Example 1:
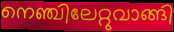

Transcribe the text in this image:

നെഞ്ചിലേറ്റുവാങ്ങി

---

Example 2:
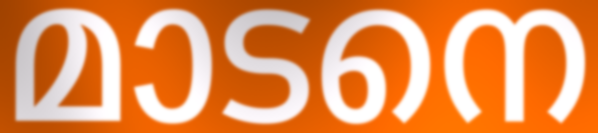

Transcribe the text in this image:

മാടനെ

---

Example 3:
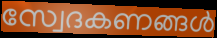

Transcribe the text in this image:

സ്വേദകണങ്ങൾ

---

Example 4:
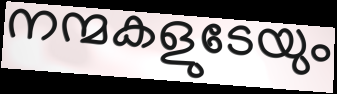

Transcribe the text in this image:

നന്മകളുടേയും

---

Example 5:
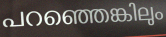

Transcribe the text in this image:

പറഞ്ഞെങ്കിലും